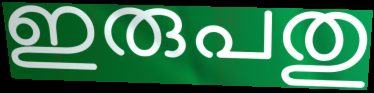
ഇരുപതു